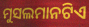
ମୁସଲମାନଟିଏ